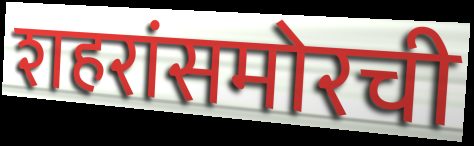
शहरांसमोरची